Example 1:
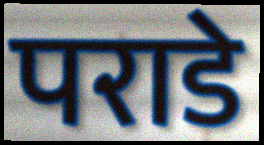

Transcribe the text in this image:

पराडे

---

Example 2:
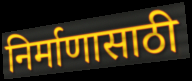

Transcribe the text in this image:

निर्माणासाठी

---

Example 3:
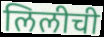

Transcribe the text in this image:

लिलीची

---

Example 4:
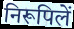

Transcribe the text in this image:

निरूपिलें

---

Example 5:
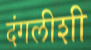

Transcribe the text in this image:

दंगलीशी